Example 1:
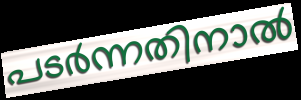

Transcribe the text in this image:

പടർന്നതിനാൽ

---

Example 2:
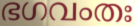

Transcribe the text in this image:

ഭഗവംതഃ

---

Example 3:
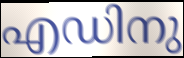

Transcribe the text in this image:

എഡിനു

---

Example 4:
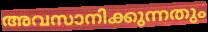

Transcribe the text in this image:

അവസാനിക്കുന്നതും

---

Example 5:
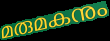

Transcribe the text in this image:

മരുമകനും